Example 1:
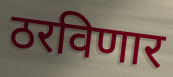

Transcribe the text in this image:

ठरविणार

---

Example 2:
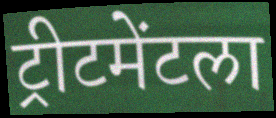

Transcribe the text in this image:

ट्रीटमेंटला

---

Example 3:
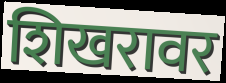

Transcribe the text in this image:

शिखरावर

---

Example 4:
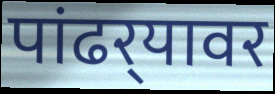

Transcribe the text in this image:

पांढर्‍यावर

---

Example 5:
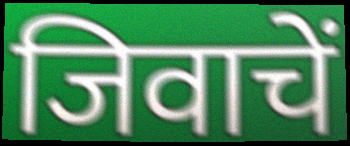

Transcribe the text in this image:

जिवाचें